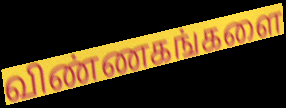
விண்ணகங்களை